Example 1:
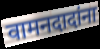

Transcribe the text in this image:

वामनदादांना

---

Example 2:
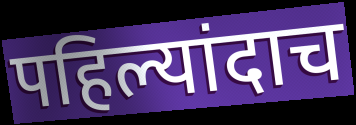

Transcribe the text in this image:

पहिल्यांदाच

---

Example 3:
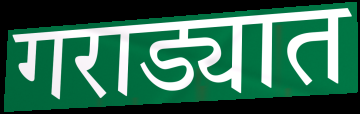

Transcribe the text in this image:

गराड्यात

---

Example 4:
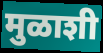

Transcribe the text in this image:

मुळाशी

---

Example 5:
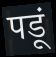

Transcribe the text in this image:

पडूं